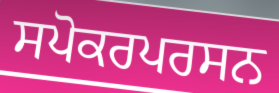
ਸਪੋਕਰਪਰਸਨ